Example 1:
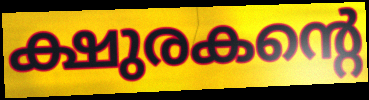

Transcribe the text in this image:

ക്ഷുരകന്റെ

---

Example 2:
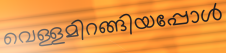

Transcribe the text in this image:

വെള്ളമിറങ്ങിയപ്പോൾ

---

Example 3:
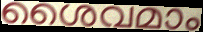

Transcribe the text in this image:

ശൈവമാം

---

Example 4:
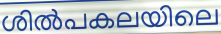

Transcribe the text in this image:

ശിൽപകലയിലെ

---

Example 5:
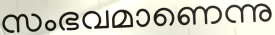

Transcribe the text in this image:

സംഭവമാണെന്നു